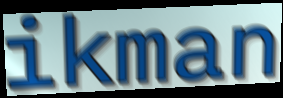
ikman